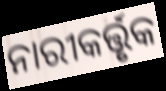
ନାରୀକର୍ତ୍ତୃକ